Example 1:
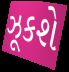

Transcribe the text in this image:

ઝૂકશે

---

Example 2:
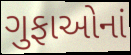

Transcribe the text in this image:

ગુફાઓનાં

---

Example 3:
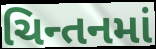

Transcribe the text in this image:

ચિન્તનમાં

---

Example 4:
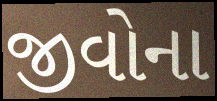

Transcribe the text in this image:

જીવોના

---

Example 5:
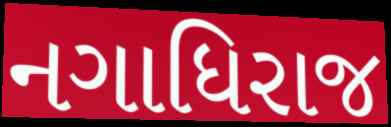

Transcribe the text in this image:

નગાધિરાજ